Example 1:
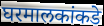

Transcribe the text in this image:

घरमालकांकडे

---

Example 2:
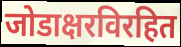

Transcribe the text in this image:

जोडाक्षरविरहित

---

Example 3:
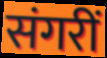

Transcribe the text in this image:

संगरीं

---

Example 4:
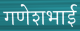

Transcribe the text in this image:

गणेशभाई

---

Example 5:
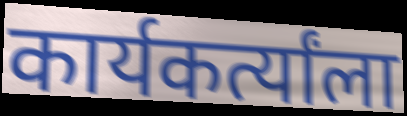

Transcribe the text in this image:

कार्यकर्त्यांला